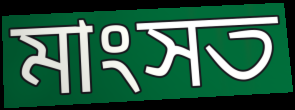
মাংসত